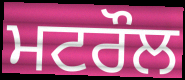
ਮਟਰੌਲ